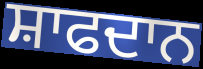
ਸ਼ਾਫਦਾਨ